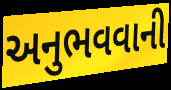
અનુભવવાની